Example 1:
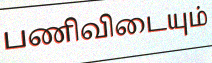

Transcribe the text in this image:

பணிவிடையும்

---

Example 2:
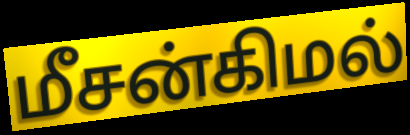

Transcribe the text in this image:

மீசன்கிமல்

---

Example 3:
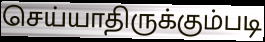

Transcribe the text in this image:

செய்யாதிருக்கும்படி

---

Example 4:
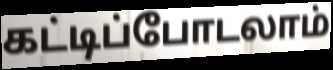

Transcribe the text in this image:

கட்டிப்போடலாம்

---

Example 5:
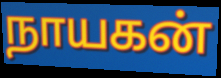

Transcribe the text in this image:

நாயகன்